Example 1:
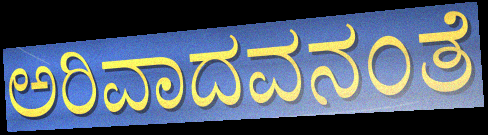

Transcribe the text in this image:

ಅರಿವಾದವನಂತೆ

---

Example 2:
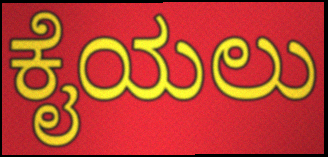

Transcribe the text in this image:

ಕೈಯಲು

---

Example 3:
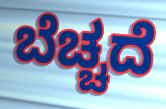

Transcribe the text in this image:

ಬೆಚ್ಚದೆ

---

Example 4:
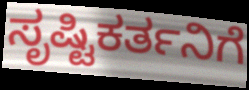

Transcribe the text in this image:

ಸೃಷ್ಟಿಕರ್ತನಿಗೆ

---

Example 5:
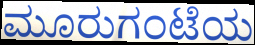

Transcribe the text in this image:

ಮೂರುಗಂಟೆಯ